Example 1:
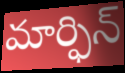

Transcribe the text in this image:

మార్ఫిన్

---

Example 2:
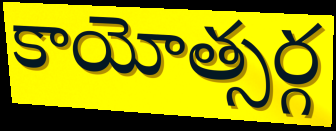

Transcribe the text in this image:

కాయోత్సర్గ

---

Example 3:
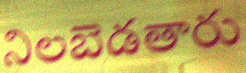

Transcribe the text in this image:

నిలబెడతారు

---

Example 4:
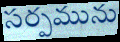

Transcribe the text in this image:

సర్పమును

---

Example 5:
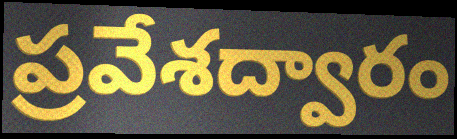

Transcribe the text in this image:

ప్రవేశద్వారం